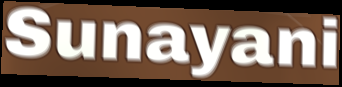
Sunayani